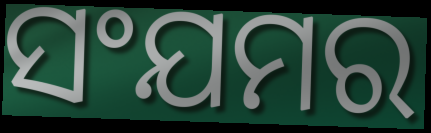
ସଂଯମର